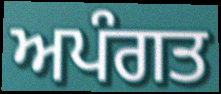
ਅਪੰਗਤ